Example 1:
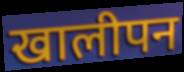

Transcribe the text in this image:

खालीपन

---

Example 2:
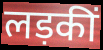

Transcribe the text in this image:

लड़कीं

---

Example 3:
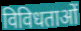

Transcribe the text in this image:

विविधताओं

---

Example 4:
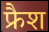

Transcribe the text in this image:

फ्रैश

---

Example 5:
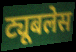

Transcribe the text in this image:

ट्यूबलेस